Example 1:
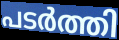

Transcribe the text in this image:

പടർത്തി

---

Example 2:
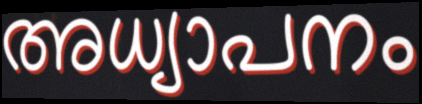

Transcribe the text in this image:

അധ്യാപനം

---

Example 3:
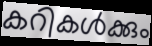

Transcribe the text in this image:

കറികൾക്കും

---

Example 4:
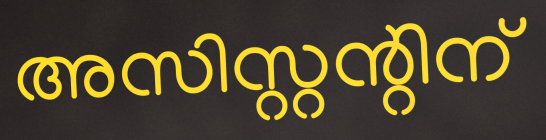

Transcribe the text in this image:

അസിസ്റ്റന്റിന്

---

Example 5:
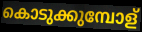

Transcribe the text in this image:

കൊടുക്കുമ്പോള്